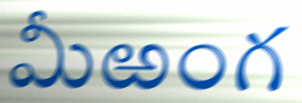
మీఱంగ